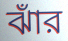
ঝাঁর